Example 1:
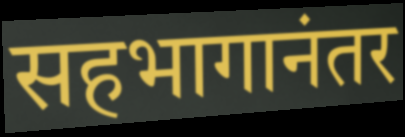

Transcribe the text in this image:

सहभागानंतर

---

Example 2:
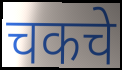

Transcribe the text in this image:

चकचे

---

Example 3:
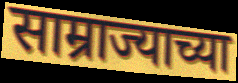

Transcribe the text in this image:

साम्राज्याच्या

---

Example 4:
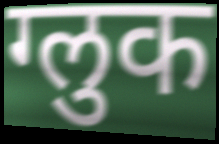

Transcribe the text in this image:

ग्लुक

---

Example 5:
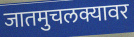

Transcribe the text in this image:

जातमुचलक्यावर